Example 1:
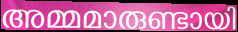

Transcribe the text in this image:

അമ്മമാരുണ്ടായി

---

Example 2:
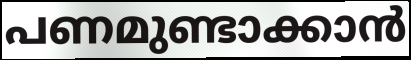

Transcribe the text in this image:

പണമുണ്ടാക്കാൻ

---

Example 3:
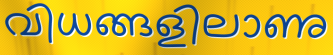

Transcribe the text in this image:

വിധങ്ങളിലാണു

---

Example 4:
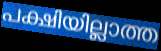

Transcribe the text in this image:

പക്ഷിയില്ലാത്ത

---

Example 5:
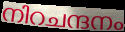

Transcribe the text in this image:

നിറചന്ദനം